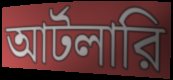
আর্টলারি